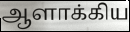
ஆளாக்கிய